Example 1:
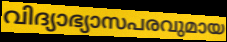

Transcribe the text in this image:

വിദ്യാഭ്യാസപരവുമായ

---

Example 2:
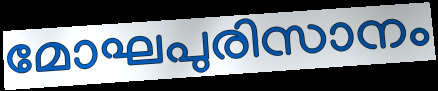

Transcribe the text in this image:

മോഘപുരിസാനം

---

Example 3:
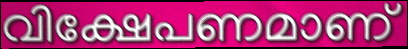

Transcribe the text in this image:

വിക്ഷേപണമാണ്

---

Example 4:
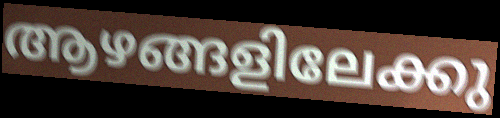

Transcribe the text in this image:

ആഴങ്ങളിലേക്കു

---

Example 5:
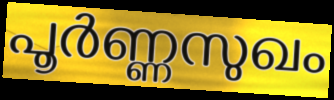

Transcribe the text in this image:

പൂർണ്ണസുഖം